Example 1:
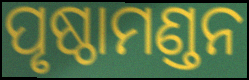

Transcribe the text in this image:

ପୃଷ୍ଠାମଣ୍ଡନ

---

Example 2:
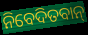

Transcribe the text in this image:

ନିବେଦିତବାନ୍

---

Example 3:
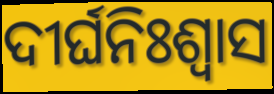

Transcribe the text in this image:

ଦୀର୍ଘନିଃଶ୍ବାସ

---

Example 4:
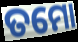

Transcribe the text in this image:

ତମୋ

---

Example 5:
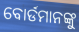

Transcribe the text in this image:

ବୋର୍ଡମାନଙ୍କୁ